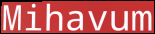
Mihavum